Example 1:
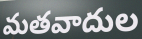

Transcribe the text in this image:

మతవాదుల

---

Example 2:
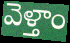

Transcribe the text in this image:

వెళ్తాం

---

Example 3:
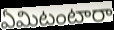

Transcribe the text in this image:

ఏమిటంటారా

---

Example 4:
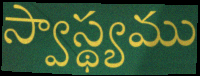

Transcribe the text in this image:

స్వాస్థ్యము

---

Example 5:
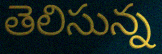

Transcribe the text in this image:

తెలిసున్న